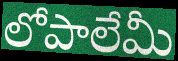
లోపాలేమీ